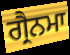
ਗ੍ਰੈਨਮਾ